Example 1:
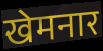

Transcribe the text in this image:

खेमनार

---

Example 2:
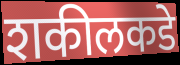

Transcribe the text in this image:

शकीलकडे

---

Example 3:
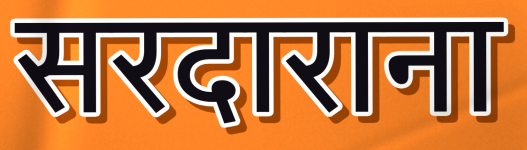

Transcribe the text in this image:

सरदाराना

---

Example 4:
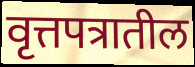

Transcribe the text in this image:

वृत्तपत्रातील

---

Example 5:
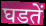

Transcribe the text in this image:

घडतें